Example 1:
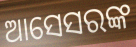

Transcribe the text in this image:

ଆସେସରଙ୍କ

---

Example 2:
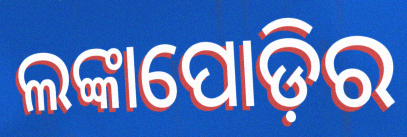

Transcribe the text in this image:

ଲଙ୍କାପୋଡ଼ିର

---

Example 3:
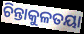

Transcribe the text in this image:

ଚିନ୍ତାକୁଳତୟା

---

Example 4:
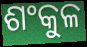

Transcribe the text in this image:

ଶଂକୁଳ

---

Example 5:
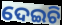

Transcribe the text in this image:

ଦେଇଚି